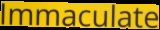
Immaculate